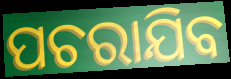
ପଚରାଯିବ